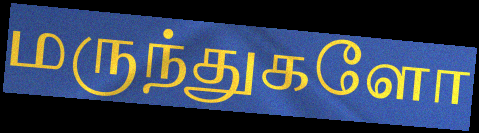
மருந்துகளோ